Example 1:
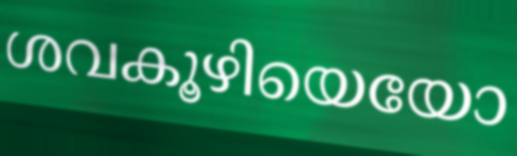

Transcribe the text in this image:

ശവകൂഴിയെയോ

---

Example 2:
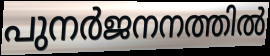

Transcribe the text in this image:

പുനർജനനത്തിൽ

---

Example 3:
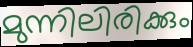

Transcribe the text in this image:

മുന്നിലിരിക്കും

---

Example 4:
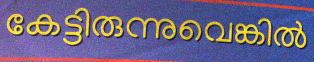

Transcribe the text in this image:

കേട്ടിരുന്നുവെങ്കിൽ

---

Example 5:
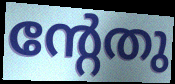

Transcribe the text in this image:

ന്റേതു